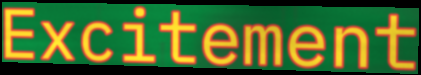
Excitement